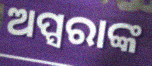
ଅପ୍ସରାଙ୍କ